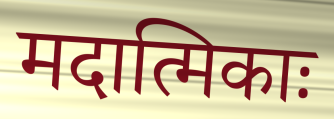
मदात्मिकाः